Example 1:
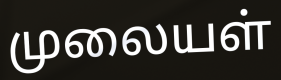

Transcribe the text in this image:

முலையள்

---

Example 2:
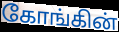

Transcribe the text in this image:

கோங்கின்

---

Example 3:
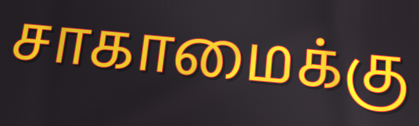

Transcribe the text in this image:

சாகாமைக்கு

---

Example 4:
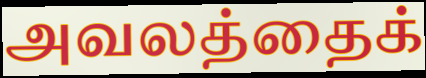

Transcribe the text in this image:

அவலத்தைக்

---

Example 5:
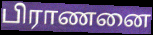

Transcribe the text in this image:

பிராணனை